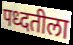
पध्दतीला